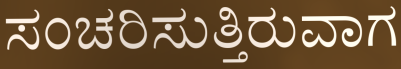
ಸಂಚರಿಸುತ್ತಿರುವಾಗ